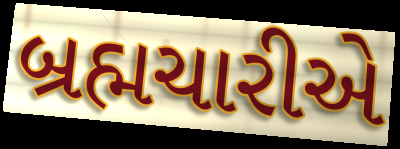
બ્રહ્મચારીએ